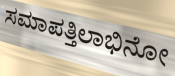
ಸಮಾಪತ್ತಿಲಾಭಿನೋ